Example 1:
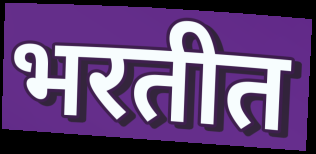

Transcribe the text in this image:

भरतीत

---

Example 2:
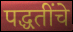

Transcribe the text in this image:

पद्धतींचे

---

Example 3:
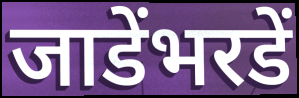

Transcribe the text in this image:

जाडेंभरडें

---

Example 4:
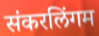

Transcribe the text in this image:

संकरलिंगम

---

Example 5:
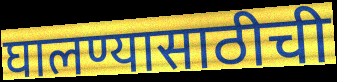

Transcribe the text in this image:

घालण्यासाठीची